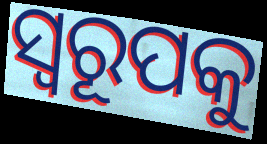
ସ୍ବରୂପକୁ